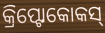
କ୍ରିପ୍ଟୋକୋକସ୍